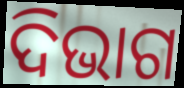
ଦିଭାଗ